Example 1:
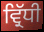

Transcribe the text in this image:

ਵ੍ਰਿੱਧੀ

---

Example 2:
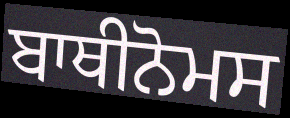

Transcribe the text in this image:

ਬਾਥੀਨੋਮਸ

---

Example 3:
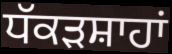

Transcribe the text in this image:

ਧੱਕੜਸ਼ਾਹਾਂ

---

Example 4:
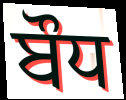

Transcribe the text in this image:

ਬੌਧ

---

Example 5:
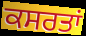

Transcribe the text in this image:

ਕਸਰਤਾਂ